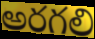
అరగలి